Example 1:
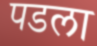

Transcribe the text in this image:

पडला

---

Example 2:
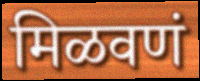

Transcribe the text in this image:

मिळवणं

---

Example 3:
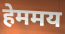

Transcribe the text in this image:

हेममय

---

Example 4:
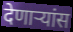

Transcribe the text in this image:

देणाऱ्यांस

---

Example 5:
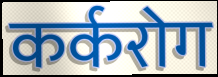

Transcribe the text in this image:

कर्करोग